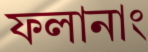
ফলানাং